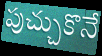
పుచ్చుకొనే